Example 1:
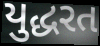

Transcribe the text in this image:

યુદ્ધરત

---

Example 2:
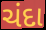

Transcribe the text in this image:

ચંદા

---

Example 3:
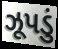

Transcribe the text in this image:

ઝૂપડું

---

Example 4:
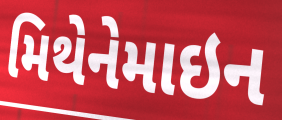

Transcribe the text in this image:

મિથેનેમાઇન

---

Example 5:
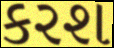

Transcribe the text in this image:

કરશ